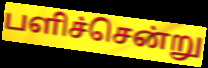
பளிச்சென்று